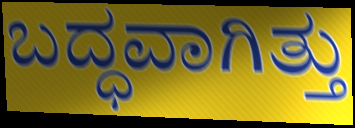
ಬದ್ಧವಾಗಿತ್ತು